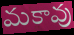
మకావు